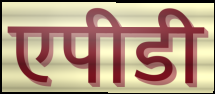
एपीडी